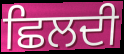
ਛਿਲਦੀ